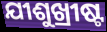
ଯୀଶୁଖ୍ରୀଷ୍ଟ